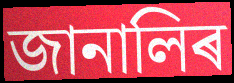
জানালিৰ